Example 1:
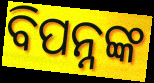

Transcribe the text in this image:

ବିପନ୍ନଙ୍କ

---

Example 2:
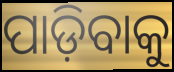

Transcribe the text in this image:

ପାଡ଼ିବାକୁ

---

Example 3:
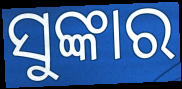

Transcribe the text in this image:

ସୁଙ୍କାର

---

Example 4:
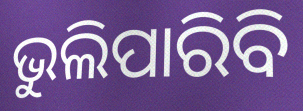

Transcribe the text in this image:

ଭୁଲିପାରିବି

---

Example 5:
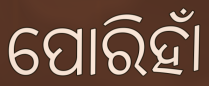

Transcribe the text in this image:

ପୋରିହାଁ